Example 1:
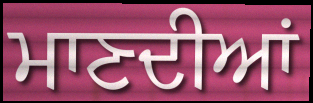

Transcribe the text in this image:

ਮਾਣਦੀਆਂ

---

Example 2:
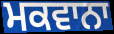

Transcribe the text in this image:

ਮਕਵਾਨਾ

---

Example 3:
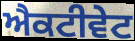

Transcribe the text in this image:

ਐਕਟੀਵੇਟ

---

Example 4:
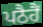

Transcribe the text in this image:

ਪਠੈਹੈਂ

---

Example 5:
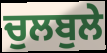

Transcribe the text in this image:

ਚੁਲਬੁਲੇ